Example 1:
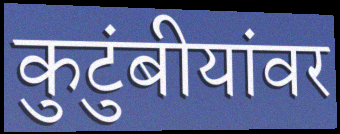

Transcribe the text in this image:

कुटुंबीयांवर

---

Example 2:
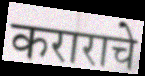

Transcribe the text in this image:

कराराचे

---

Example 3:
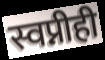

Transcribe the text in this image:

स्वप्नीही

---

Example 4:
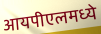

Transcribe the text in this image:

आयपीएलमध्ये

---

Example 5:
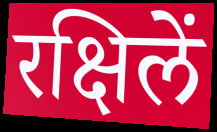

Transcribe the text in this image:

रक्षिलें